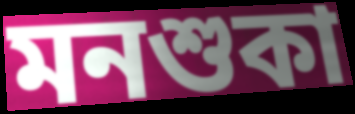
মনশুকা